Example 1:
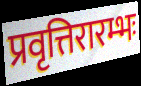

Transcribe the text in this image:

प्रवृत्तिरारम्भः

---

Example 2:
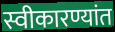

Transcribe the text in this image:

स्वीकारण्यांत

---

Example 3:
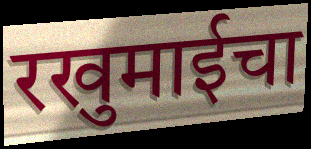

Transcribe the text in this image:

रखुमाईचा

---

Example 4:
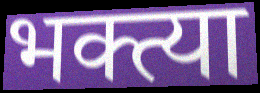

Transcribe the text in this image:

भक्त्या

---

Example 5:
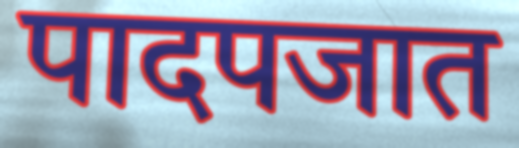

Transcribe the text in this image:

पादपजात